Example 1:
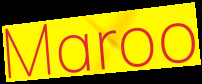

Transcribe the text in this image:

Maroo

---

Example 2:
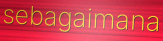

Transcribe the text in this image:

sebagaimana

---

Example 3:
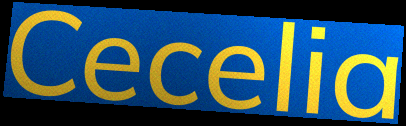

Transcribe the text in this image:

Cecelia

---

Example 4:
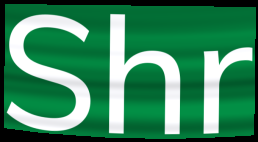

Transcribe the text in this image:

Shr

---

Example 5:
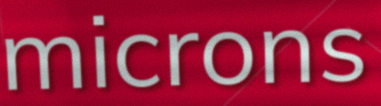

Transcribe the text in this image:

microns